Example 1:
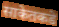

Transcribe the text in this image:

साकेतकडे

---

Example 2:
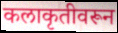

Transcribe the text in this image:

कलाकृतीवरून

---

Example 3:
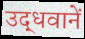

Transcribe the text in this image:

उद्धवानें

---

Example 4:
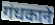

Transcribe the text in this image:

गंधकाने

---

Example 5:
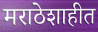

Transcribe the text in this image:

मराठेशाहीत